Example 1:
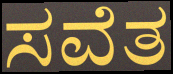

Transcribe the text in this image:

ಸವೆತ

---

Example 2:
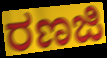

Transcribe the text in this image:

ರಣಜಿ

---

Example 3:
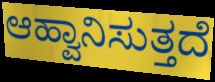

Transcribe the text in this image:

ಆಹ್ವಾನಿಸುತ್ತದೆ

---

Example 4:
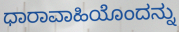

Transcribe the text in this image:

ಧಾರಾವಾಹಿಯೊಂದನ್ನು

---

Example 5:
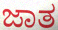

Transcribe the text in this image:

ಜಾತ